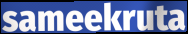
sameekruta